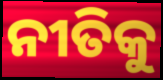
ନୀତିକୁ